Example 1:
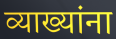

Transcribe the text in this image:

व्याख्यांना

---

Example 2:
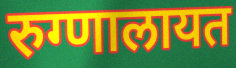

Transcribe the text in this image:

रुग्णालायत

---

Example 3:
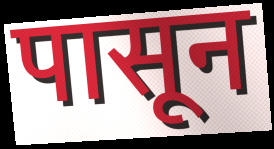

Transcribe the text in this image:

पासून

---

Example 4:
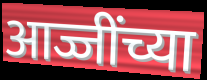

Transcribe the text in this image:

आज्जींच्या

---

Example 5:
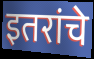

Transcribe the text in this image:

इतरांचे